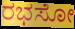
ರಭಸೋ